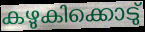
കഴുകിക്കൊടു്